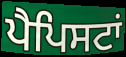
ਪੈਪਿਸਟਾਂ